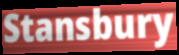
Stansbury